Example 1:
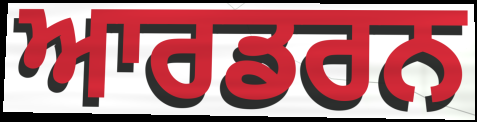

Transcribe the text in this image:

ਆਰਡਰਨ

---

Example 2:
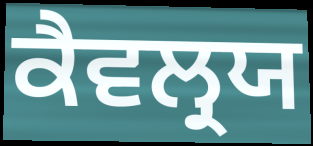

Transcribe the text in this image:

ਕੈਵਲ੍ਰਯ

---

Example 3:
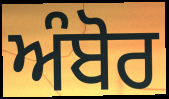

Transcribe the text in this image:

ਅੰਬੋਰ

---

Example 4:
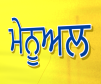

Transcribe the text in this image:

ਮੇਨੂਅਲ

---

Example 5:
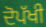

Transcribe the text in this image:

ਦੋਪੱਖੀ